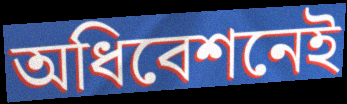
অধিবেশনেই